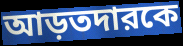
আড়তদারকে